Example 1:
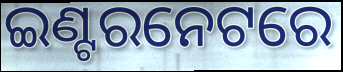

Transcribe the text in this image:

ଇଣ୍ଟରନେଟରେ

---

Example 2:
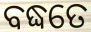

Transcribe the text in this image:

ବଦ୍ଧତେ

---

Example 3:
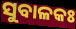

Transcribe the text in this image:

ସୁବାଳକଃ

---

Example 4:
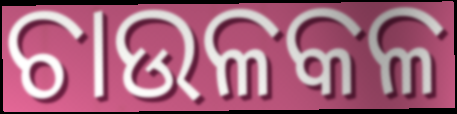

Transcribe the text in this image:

ଚାଉଳକଳ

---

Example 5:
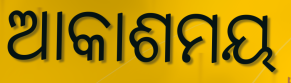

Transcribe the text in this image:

ଆକାଶମୟ